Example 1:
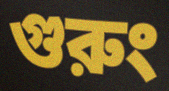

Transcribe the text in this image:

গুরুং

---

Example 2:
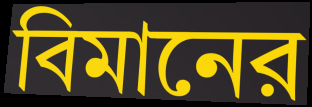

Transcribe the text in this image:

বিমানের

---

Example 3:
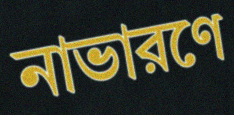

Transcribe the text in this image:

নাভারণে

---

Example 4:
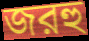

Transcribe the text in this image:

জরহু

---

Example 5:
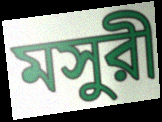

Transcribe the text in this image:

মসুরী